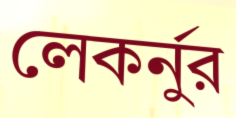
লেকর্নুর